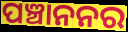
ପଞ୍ଚାନନର